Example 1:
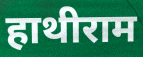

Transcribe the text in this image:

हाथीराम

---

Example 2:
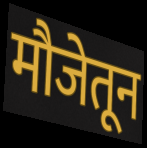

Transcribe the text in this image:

मौजेतून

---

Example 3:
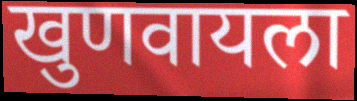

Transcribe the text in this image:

खुणवायला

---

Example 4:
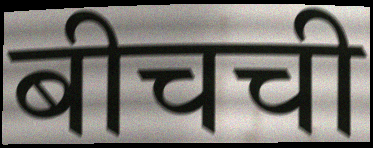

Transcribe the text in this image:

बीचची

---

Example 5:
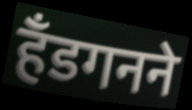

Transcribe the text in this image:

हँडगनने